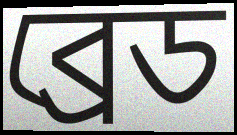
ব্ৰেড